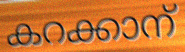
കറക്കാന്